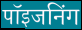
पॉइजनिंग